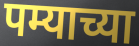
पम्याच्या